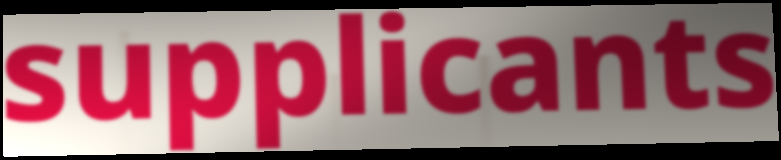
supplicants